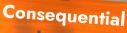
Consequential